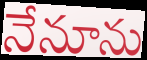
నేనూను